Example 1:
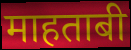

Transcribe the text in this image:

माहताबी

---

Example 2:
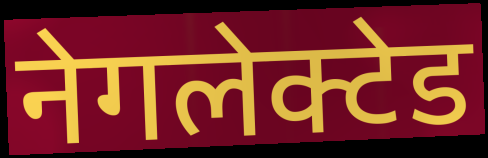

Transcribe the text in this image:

नेगलेक्टेड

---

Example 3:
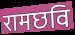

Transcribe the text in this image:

रामछवि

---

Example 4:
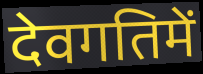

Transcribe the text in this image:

देवगतिमें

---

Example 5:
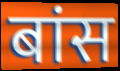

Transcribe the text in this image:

बांस